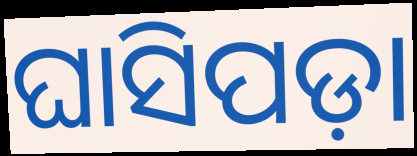
ଘାସିପଡ଼ା